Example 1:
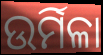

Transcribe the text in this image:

ଉର୍ମିଳା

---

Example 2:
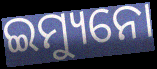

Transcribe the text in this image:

ଇମ୍ୟୁନୋ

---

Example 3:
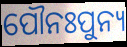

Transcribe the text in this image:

ପୌନଃପୁନ୍ୟ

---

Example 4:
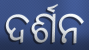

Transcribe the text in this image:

ଦର୍ଶନ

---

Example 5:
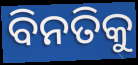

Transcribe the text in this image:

ବିନତିକୁ